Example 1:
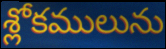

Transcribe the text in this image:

శ్లోకములును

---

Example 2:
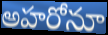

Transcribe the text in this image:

అహరోనూ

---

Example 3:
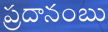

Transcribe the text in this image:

ప్రదానంబు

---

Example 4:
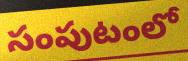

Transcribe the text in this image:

సంపుటంలో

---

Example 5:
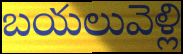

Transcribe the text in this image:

బయలువెళ్లి